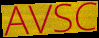
AVSC